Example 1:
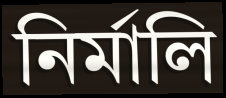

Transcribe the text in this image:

নির্মালি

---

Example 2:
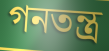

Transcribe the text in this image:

গনতন্ত্র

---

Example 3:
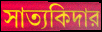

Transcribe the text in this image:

সাত্যকিদার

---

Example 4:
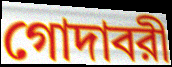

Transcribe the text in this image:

গোদাবরী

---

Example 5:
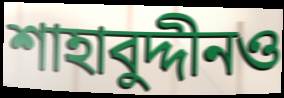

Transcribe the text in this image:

শাহাবুদ্দীনও